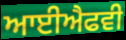
ਆਈਐਫਵੀ